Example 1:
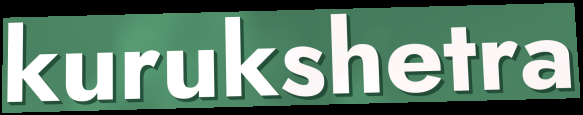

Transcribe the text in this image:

kurukshetra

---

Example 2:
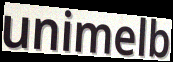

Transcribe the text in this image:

unimelb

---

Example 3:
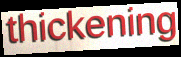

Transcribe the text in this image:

thickening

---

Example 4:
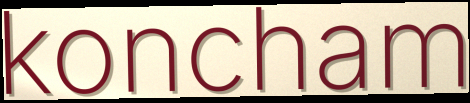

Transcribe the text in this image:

koncham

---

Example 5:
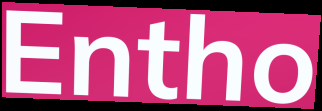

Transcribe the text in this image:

Entho